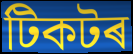
টিকটৰ